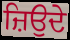
ਜ਼ਿਉਦੇ